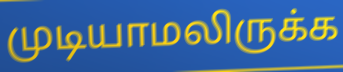
முடியாமலிருக்க